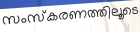
സംസ്കരണത്തിലൂടെ